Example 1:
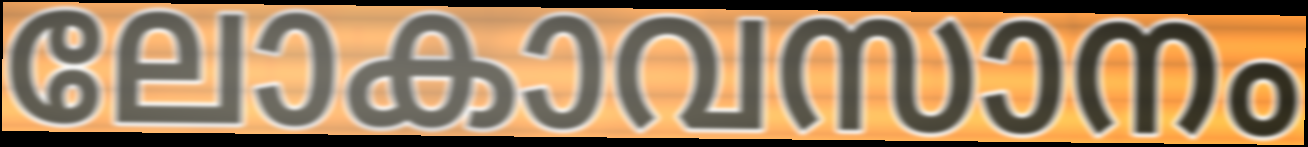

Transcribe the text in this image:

ലോകാവസാനം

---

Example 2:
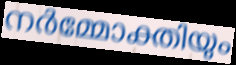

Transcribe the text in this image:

നർമ്മോക്തിയും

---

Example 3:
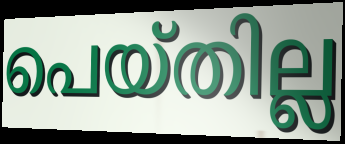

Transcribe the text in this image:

പെയ്തില്ല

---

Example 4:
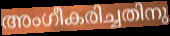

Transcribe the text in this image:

അംഗീകരിച്ചതിനു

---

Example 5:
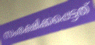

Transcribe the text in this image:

സംരക്ഷിക്കപ്പെട്ടത്